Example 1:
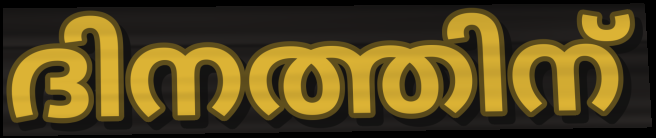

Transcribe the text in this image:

ദിനത്തിന്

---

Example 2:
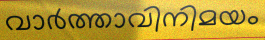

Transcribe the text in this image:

വാർത്താവിനിമയം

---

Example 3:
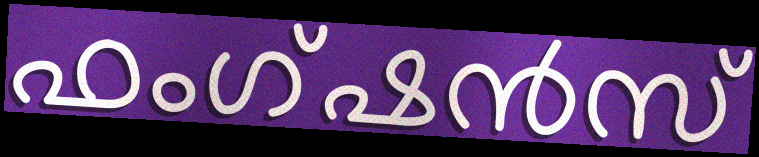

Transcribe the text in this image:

ഫംഗ്ഷൻസ്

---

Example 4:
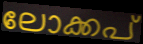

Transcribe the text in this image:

ലോക്കപ്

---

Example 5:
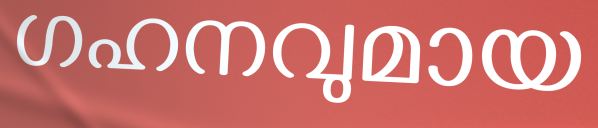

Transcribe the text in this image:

ഗഹനവുമായ